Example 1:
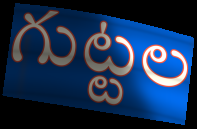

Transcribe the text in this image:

గుట్టల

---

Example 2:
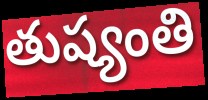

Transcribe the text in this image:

తుష్యంతి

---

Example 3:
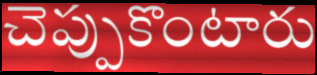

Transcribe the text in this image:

చెప్పుకొంటారు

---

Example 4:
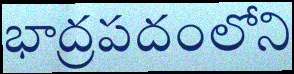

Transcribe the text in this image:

భాద్రపదంలోని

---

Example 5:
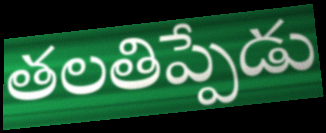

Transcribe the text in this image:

తలతిప్పేడు